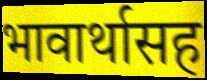
भावार्थासह